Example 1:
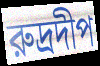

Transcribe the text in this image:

রুদ্রদীপ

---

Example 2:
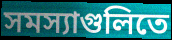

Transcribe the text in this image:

সমস্যাগুলিতে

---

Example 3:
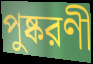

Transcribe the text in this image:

পুষ্করণী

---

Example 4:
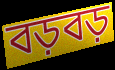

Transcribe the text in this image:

বড়বড়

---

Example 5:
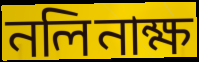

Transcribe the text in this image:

নলিনাক্ষ